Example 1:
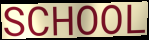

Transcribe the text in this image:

SCHOOL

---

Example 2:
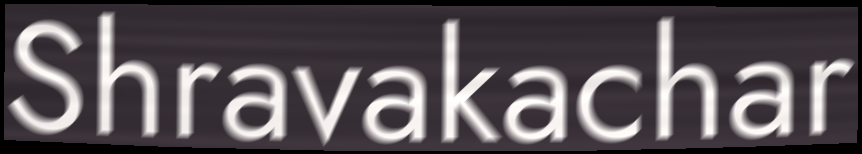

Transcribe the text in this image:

Shravakachar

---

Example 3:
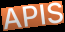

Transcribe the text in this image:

APIS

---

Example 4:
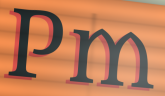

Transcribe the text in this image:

Pm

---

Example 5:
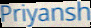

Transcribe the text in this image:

Priyansh